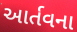
આર્તવના